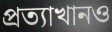
প্রত্যাখানও